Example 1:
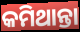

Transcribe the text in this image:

କମିଥାନ୍ତା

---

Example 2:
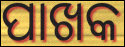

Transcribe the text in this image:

ପାଖକ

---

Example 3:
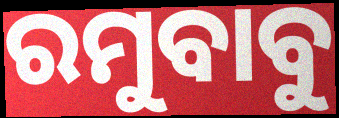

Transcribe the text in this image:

ରମୁବାବୁ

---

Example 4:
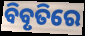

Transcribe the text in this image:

ବିବୃତିରେ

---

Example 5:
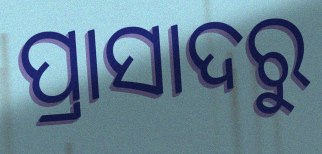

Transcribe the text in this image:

ପ୍ରାସାଦରୁ